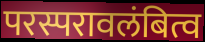
परस्परावलंबित्व